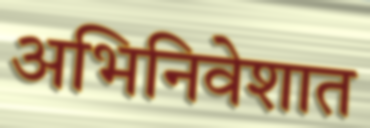
अभिनिवेशात